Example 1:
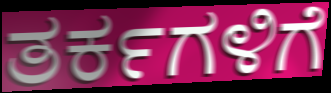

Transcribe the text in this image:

ತರ್ಕಗಳಿಗೆ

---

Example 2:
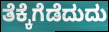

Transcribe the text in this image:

ತೆಕ್ಕೆಗೆಡೆದುದು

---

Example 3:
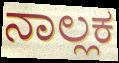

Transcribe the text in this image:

ನಾಲ್ಲಕ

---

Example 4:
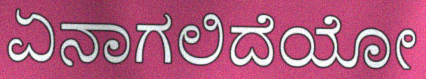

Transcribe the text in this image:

ಏನಾಗಲಿದೆಯೋ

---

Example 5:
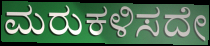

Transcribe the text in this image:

ಮರುಕಳಿಸದೇ